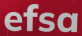
efsa